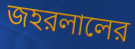
জহরলালের